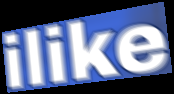
ilike